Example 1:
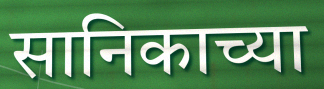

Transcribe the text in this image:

सानिकाच्या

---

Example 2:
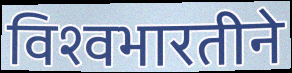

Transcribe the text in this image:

विश्वभारतीने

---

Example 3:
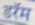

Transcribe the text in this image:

डरॅम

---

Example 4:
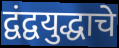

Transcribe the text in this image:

द्वंद्वयुद्धाचे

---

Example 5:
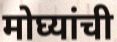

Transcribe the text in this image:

मोघ्यांची